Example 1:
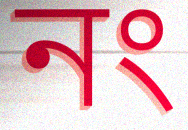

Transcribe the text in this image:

নং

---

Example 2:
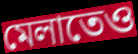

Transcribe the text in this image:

মেলাতেও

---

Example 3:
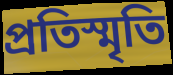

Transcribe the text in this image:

প্রতিস্মৃতি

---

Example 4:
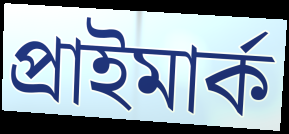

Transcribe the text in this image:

প্রাইমার্ক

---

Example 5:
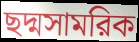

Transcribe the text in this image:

ছদ্মসামরিক